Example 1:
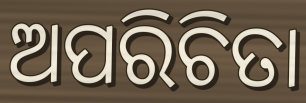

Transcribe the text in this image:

ଅପରିଚିତା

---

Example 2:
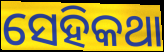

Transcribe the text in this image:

ସେହିକଥା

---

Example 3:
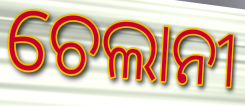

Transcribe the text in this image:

ଚେଲାନୀ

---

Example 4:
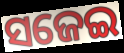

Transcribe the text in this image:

ସଜେଇ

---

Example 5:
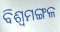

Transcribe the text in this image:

ବିଶ୍ୱମଙ୍ଗଳ